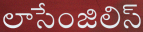
లాసేంజిలిస్